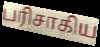
பரிசாகிய